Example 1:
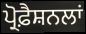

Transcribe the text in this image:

ਪ੍ਰੋਫ਼ੈਸ਼ਨਲਾਂ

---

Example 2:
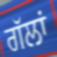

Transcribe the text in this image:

ਗੱਲਾਂ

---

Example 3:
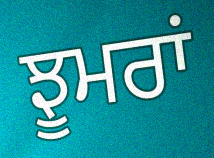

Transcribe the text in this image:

ਝੂਮਰਾਂ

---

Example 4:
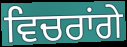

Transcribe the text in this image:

ਵਿਚਰਾਂਗੇ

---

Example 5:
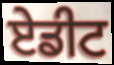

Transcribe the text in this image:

ਏਡੀਟ